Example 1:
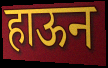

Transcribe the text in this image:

हाऊन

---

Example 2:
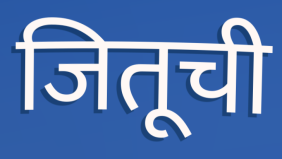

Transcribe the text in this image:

जितूची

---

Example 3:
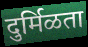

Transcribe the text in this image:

दुर्मिळता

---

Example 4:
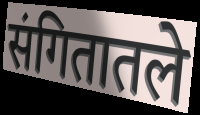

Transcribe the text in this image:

संगितातले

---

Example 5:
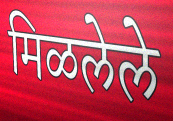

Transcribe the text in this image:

मिळलेले